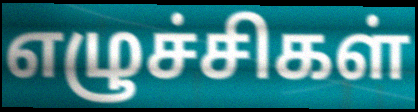
எழுச்சிகள்